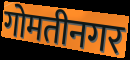
गोमतीनगर